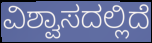
ವಿಶ್ವಾಸದಲ್ಲಿದೆ